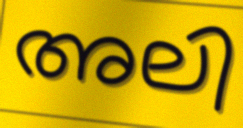
അലി